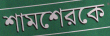
শামশেরকে